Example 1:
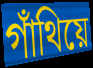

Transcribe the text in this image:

গাঁথিয়ে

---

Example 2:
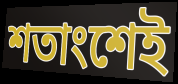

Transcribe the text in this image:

শতাংশেই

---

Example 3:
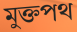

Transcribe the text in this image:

মুক্তপথ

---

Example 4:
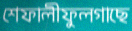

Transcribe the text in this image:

শেফালীফুলগাছে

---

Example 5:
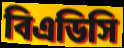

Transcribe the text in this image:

বিএডিসি